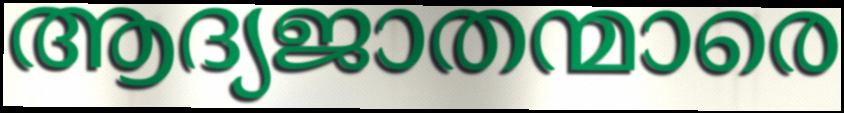
ആദ്യജാതന്മാരെ